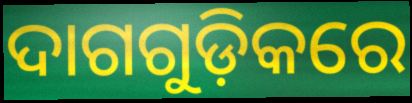
ଦାଗଗୁଡ଼ିକରେ